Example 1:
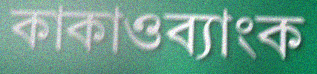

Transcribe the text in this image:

কাকাওব্যাংক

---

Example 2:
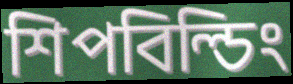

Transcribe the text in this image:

শিপবিল্ডিং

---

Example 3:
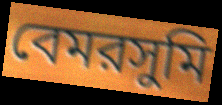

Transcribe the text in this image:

বেমরসুমি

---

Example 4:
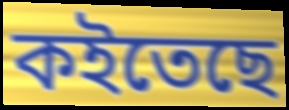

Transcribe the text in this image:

কইতেছে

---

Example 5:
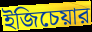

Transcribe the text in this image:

ইজিচেয়ার